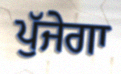
ਪੁੱਜੇਗਾ